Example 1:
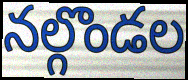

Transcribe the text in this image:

నల్గొండల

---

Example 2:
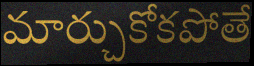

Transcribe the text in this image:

మార్చుకోకపోతే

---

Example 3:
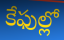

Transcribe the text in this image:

కేఫుల్లో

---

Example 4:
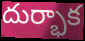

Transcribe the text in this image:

దుర్భాక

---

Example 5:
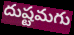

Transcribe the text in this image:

దుష్టమగు